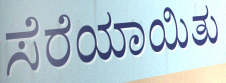
ಸೆರೆಯಾಯಿತು